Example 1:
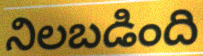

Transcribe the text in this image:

నిలబడింది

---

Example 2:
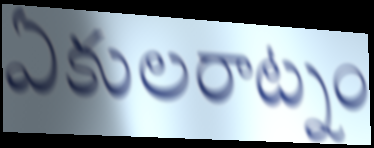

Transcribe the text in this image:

ఏకులరాట్నం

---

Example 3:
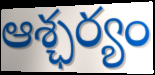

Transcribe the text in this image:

ఆశ్ఛర్యం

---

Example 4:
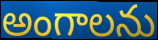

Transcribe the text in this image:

అంగాలను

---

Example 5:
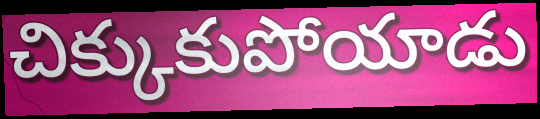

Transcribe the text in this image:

చిక్కుకుపోయాడు